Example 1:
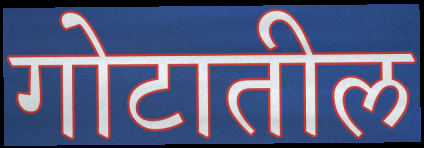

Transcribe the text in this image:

गोटातील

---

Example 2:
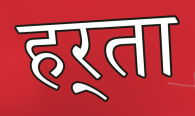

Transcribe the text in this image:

हर्ता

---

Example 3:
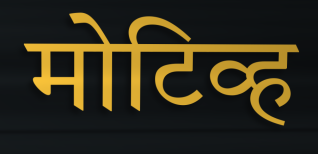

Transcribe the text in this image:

मोटिव्ह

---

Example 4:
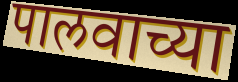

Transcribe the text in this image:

पालवाच्या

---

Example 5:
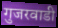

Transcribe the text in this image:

गुजरवाडी